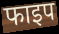
फाइप